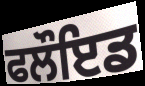
ਫਲੌਇਡ